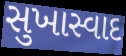
સુખાસ્વાદ